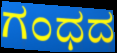
ಗಂಧದ